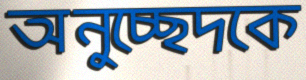
অনুচ্ছেদকে